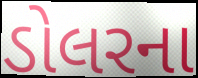
ડોલરના